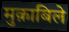
मुक़ाबिले